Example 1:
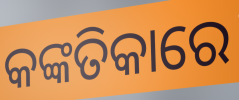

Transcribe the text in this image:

କଙ୍କତିକାରେ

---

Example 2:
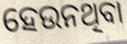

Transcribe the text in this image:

ହେଉନଥିବା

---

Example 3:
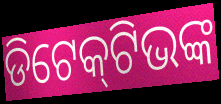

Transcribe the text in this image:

ଡିଟେକ୍‌ଟିଭଙ୍କ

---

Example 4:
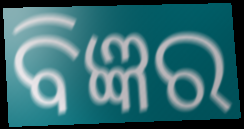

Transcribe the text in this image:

ବିଜ୍ଞର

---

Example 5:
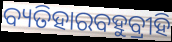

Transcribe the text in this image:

ବ୍ୟତିହାରବହୁବ୍ରୀହି